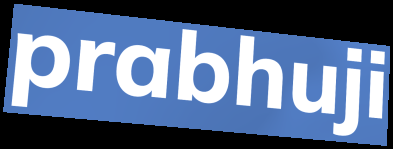
prabhuji